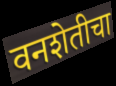
वनशेतीचा